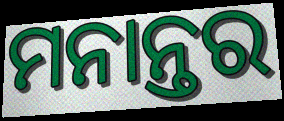
ମନାନ୍ତର